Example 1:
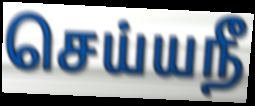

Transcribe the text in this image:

செய்யநீ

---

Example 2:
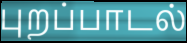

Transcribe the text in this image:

புறப்பாடல்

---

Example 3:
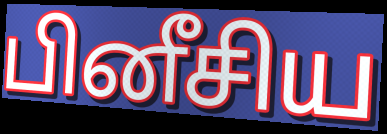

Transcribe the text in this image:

பினீசிய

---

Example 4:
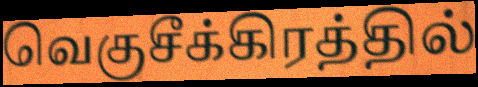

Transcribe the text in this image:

வெகுசீக்கிரத்தில்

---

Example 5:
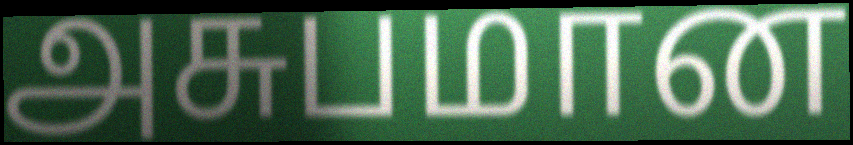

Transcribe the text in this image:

அசுபமான